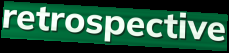
retrospective